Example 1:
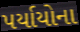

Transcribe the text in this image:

પર્યાયોના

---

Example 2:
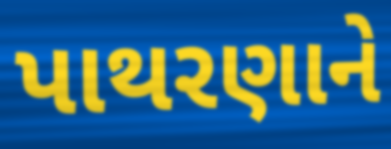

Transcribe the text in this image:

પાથરણાને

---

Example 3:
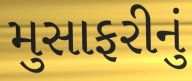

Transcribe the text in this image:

મુસાફરીનું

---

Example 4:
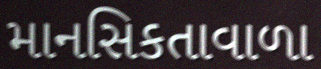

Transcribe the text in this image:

માનસિકતાવાળા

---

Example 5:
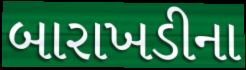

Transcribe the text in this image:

બારાખડીના